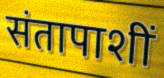
संतापाशीं